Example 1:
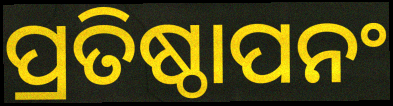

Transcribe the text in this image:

ପ୍ରତିଷ୍ଠାପନଂ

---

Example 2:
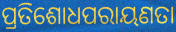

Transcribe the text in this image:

ପ୍ରତିଶୋଧପରାୟଣତା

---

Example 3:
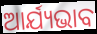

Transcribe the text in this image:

ଆର୍ଯ୍ୟଭାବ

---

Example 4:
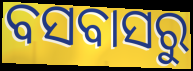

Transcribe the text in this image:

ବସବାସରୁ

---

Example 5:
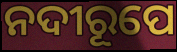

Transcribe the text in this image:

ନଦୀରୂପେ